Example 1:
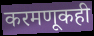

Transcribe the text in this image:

करमणूकही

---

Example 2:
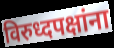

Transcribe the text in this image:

विरुध्दपक्षांना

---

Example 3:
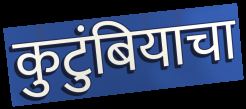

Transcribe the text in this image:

कुटुंबियाचा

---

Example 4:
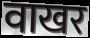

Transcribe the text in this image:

वाखर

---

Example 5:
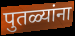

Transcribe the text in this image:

पुतळ्यांना